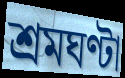
শ্রমঘণ্টা